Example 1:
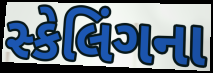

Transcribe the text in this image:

સ્કેલિંગના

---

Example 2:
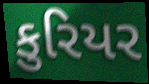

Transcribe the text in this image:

કુરિયર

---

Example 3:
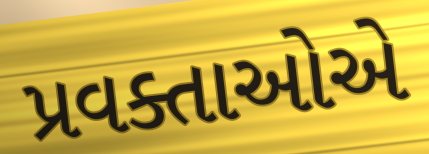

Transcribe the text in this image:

પ્રવક્તાઓએ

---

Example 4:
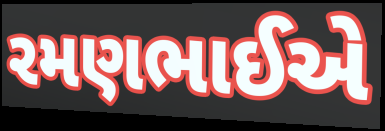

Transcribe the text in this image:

રમણભાઈએ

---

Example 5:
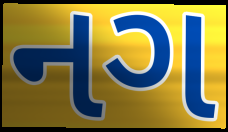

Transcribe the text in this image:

નગ